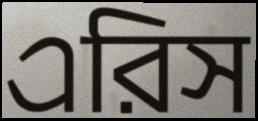
এরিস